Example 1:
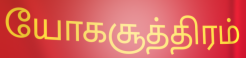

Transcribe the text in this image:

யோகசூத்திரம்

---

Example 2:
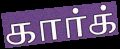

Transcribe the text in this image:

கார்க்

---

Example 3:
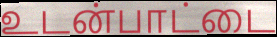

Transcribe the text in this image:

உடன்பாட்டை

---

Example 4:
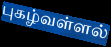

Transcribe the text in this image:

புகழ்வள்ளல்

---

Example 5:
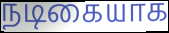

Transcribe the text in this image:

நடிகையாக